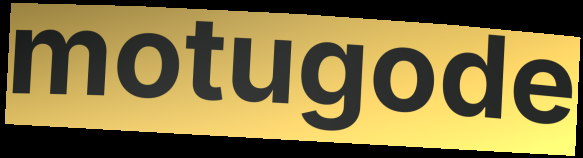
motugode